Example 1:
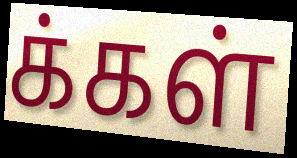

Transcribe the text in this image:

க்கள்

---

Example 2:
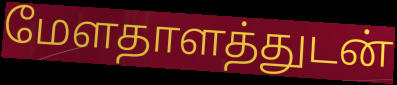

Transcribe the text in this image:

மேளதாளத்துடன்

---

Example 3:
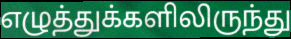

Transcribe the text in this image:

எழுத்துக்களிலிருந்து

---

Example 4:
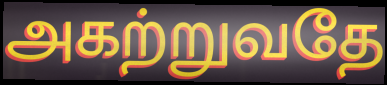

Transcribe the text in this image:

அகற்றுவதே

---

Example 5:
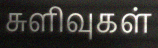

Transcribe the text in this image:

சுளிவுகள்